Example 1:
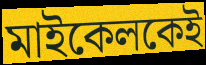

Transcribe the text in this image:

মাইকেলকেই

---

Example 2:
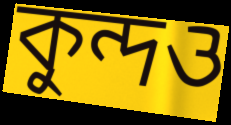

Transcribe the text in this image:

কুন্দও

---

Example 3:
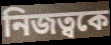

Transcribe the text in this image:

নিজত্বকে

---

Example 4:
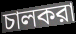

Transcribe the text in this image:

চালকরা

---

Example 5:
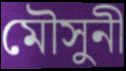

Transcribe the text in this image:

মৌসুনী